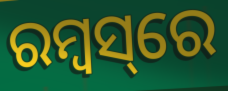
ରମ୍ବସ୍‌ରେ